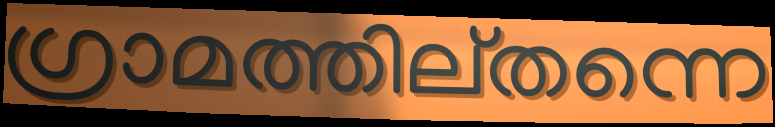
ഗ്രാമത്തില്തന്നെ